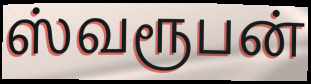
ஸ்வரூபன்